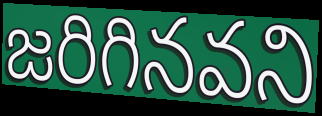
జరిగినవని